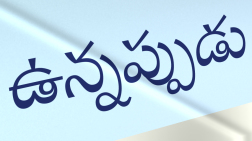
ఉన్నప్పుడు